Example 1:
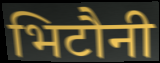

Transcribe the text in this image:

भिटौनी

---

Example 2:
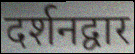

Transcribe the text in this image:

दर्शनद्वार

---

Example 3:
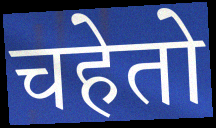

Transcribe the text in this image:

चहेतो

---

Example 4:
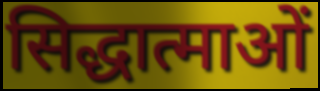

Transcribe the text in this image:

सिद्धात्माओं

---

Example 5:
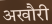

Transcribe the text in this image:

अखौरी